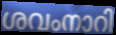
ശവംനാറി